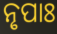
ନୃପାଃ